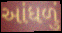
આંધળું